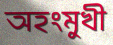
অহংমুখী